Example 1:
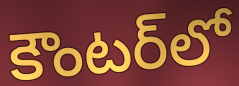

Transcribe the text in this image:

కౌంటర్‌లో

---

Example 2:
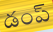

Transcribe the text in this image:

డంప్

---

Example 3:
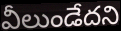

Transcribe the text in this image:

వీలుండేదని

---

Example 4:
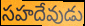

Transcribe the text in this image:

సహదేవుడు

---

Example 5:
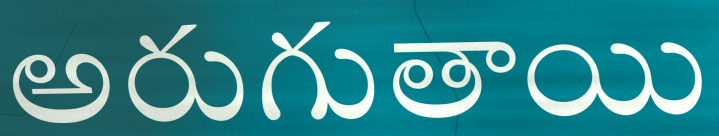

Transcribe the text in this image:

అరుగుతాయి